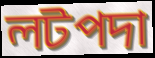
লটপদা